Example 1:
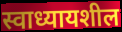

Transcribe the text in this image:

स्वाध्यायशील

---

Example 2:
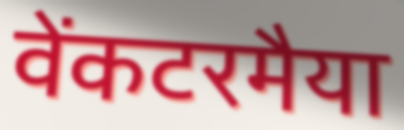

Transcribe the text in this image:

वेंकटरमैया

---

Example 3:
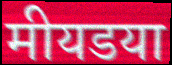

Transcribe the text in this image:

मीयडया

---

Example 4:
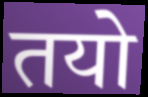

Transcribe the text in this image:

तयो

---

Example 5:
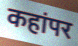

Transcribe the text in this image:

कहांपर